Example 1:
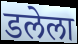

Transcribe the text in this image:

डलेला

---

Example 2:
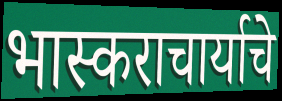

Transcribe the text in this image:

भास्कराचार्याचे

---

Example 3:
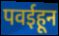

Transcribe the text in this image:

पवईहून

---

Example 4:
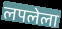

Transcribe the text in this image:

लपलेला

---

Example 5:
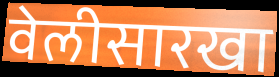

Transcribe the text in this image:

वेलीसारखा